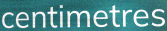
centimetres